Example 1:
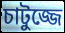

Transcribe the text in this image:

চাটুজ্জে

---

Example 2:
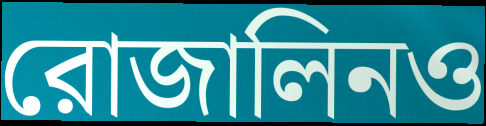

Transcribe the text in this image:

রোজালিনও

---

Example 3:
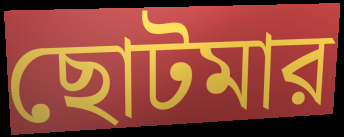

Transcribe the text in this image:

ছোটমার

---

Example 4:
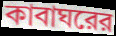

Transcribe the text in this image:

কাবাঘরের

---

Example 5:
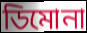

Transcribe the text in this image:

ডিমোনা